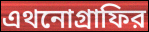
এথনোগ্রাফির